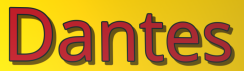
Dantes